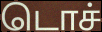
டொச்